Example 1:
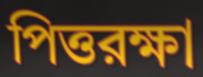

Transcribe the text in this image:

পিত্তরক্ষা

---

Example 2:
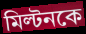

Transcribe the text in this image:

মিল্টনকে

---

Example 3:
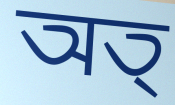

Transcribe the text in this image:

অত্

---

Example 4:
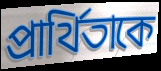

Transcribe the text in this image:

প্রার্থিতাকে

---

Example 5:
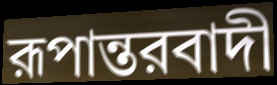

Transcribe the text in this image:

রূপান্তরবাদী